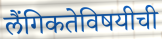
लैंगिकतेविषयीची